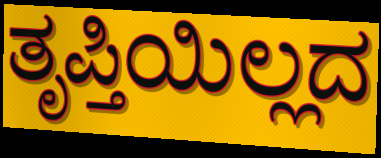
ತೃಪ್ತಿಯಿಲ್ಲದ